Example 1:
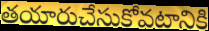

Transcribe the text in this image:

తయారుచేసుకోవటానికి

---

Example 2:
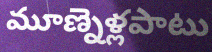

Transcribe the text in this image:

మూణ్నెళ్లపాటు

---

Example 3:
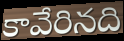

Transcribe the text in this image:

కావేరినది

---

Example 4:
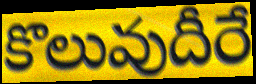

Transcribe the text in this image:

కొలువుదీరే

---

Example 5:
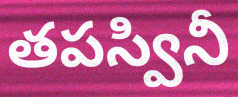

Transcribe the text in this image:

తపస్వినీ